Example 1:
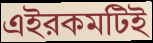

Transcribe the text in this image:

এইরকমটিই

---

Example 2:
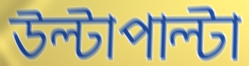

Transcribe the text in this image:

উল্টাপাল্টা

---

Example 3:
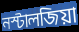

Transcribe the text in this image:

নস্টালজিয়া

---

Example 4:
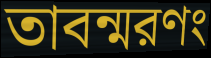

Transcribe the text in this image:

তাবন্মরণং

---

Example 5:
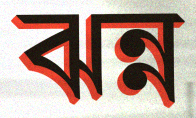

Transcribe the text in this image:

ঝন্ন